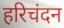
हरिचंदन